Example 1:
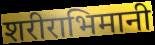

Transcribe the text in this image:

शरीराभिमानी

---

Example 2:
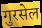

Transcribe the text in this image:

गुरसेल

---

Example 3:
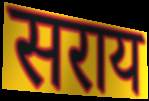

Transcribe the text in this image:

सराय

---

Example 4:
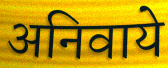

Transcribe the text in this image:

अनिवाये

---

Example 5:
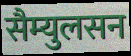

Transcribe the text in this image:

सैम्युलसन